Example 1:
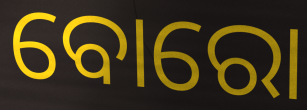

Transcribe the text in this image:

ବୋରୋ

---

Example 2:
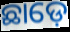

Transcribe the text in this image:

ଛାଡ଼େ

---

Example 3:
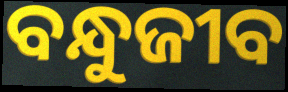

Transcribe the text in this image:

ବନ୍ଧୁଜୀବ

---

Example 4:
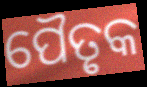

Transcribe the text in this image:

ପୈତୃକ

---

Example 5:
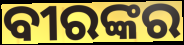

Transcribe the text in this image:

ବୀରଙ୍କର